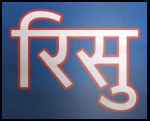
रिसु